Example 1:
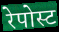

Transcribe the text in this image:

रेपोस्ट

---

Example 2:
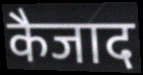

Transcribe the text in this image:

कैजाद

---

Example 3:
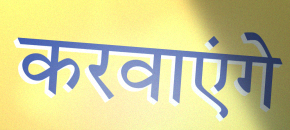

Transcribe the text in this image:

करवाएंगे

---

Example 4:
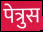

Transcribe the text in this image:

पेत्रुस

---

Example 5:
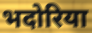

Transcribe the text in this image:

भदोरिया